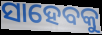
ସାହେବକୁ